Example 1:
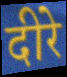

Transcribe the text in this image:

दीरे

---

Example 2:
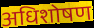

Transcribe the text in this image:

अधिशोषण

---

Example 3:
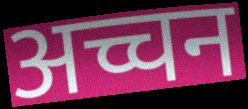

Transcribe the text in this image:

अच्चन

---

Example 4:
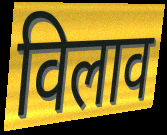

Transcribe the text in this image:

विलाव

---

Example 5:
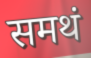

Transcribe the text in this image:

समथं